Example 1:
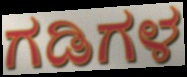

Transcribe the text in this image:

ಗಡಿಗಳ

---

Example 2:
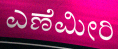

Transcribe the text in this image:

ಎಣೆಮೀರಿ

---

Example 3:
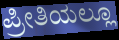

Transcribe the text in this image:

ಪ್ರೀತಿಯಲ್ಲೂ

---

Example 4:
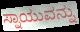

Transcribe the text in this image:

ಸ್ನಾಯುವನ್ನು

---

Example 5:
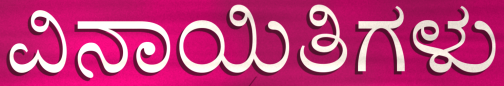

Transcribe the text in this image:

ವಿನಾಯಿತಿಗಳು